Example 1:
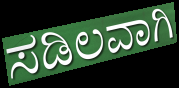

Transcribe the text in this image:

ಸಡಿಲವಾಗಿ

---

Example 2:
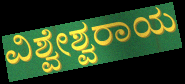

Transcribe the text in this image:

ವಿಶ್ವೇಶ್ವರಾಯ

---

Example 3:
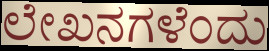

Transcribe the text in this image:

ಲೇಖನಗಳೆಂದು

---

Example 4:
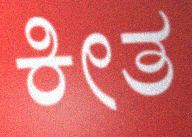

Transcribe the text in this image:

ಕೀತ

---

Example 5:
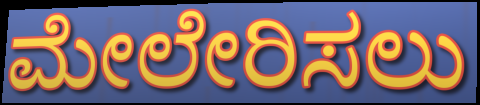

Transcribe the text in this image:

ಮೇಲೇರಿಸಲು